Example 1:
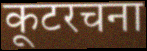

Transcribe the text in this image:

कूटरचना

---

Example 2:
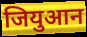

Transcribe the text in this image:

जियुआन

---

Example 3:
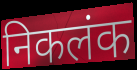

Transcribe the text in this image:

निकलंक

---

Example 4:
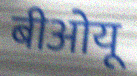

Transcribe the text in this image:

बीओयू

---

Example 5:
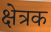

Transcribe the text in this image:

क्षेत्रक